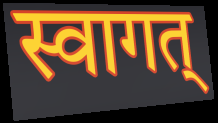
स्वागत्